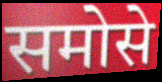
समोसे